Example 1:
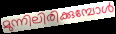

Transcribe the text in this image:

മുന്നിലിരിക്കുമ്പോൾ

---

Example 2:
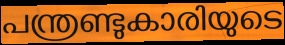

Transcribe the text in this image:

പന്ത്രണ്ടുകാരിയുടെ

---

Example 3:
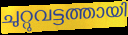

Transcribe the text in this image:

ചുറ്റുവട്ടത്തായി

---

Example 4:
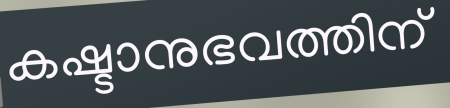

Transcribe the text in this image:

കഷ്ടാനുഭവത്തിന്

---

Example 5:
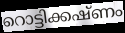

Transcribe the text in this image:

റൊട്ടിക്കഷ്ണം